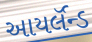
આયર્લૅન્ડ